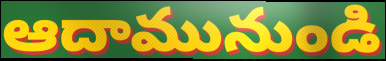
ఆదామునుండి